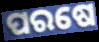
ପରଷେ